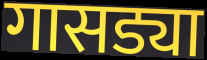
गासड्या